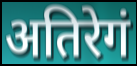
अतिरेगं